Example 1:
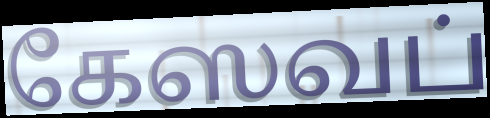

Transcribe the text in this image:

கேஸவப்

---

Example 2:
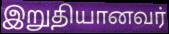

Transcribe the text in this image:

இறுதியானவர்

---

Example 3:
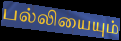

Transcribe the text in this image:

பல்லியையும்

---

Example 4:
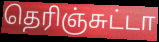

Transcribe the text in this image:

தெரிஞ்சுட்டா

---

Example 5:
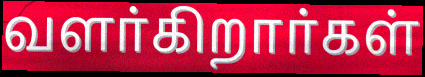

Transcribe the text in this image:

வளர்கிறார்கள்